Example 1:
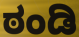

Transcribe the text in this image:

ಠಂಡಿ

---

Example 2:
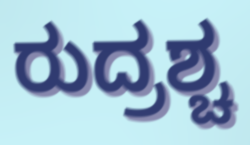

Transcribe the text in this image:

ರುದ್ರಶ್ಚ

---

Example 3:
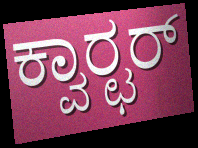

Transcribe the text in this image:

ಕ್ವಾರ‍್ಟರ್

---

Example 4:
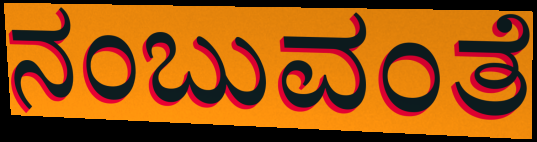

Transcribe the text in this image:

ನಂಬುವಂತೆ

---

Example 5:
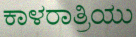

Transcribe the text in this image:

ಕಾಳರಾತ್ರಿಯು